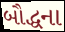
બૌદ્ધના